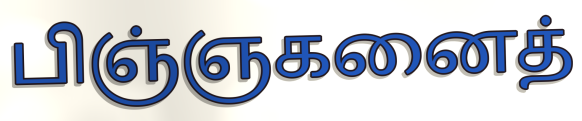
பிஞ்ஞகனைத்